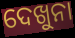
ଦେଖୁନା